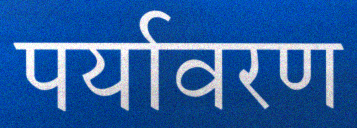
पर्यावरण